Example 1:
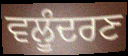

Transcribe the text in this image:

ਵਲੂੰਦਰਣ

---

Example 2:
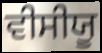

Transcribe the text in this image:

ਵੀਸੀਯੂ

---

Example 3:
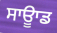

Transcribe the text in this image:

ਸਾਊਾਡ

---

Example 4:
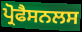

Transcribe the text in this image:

ਪ੍ਰੋਫੈਸਨਲਸ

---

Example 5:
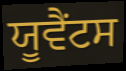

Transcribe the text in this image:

ਯੂਵੈਂਟਸ